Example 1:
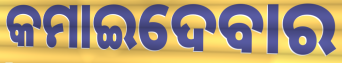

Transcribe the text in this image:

କମାଇଦେବାର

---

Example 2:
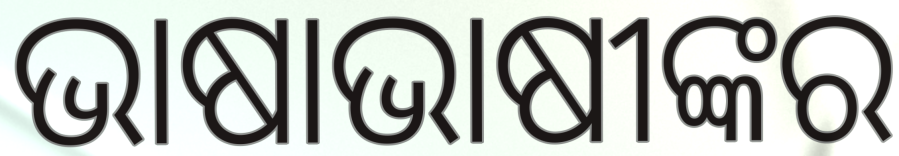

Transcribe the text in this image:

ଭାଷାଭାଷୀଙ୍କର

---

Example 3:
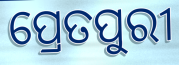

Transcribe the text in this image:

ପ୍ରେତପୁରୀ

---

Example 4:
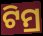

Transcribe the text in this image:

ଟିମ୍ର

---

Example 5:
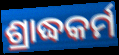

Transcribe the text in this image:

ଶ୍ରାଦ୍ଧକର୍ମ